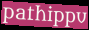
pathippu